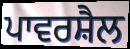
ਪਾਵਰਸ਼ੈਲ